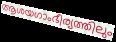
ആശയഗാംഭീര്യത്തിലും